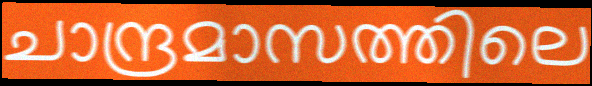
ചാന്ദ്രമാസത്തിലെ